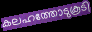
കലഹത്തോടുകൂടി